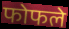
फोफले